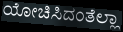
ಯೋಚಿಸಿದಂತೆಲ್ಲಾ